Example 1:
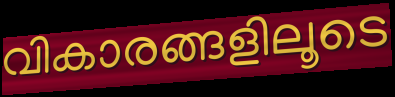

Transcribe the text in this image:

വികാരങ്ങളിലൂടെ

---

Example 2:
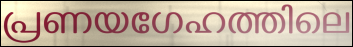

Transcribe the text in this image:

പ്രണയഗേഹത്തിലെ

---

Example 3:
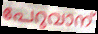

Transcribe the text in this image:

പേറുവാന്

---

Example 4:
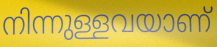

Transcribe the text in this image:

നിന്നുള്ളവയാണ്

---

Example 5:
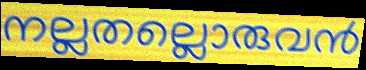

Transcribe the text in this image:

നല്ലതല്ലൊരുവൻ